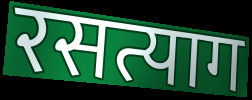
रसत्याग